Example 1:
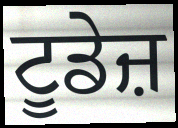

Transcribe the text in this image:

ਟੂਡੇਜ਼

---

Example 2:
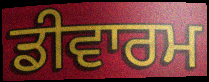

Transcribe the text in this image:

ਡੀਵਾਰਮ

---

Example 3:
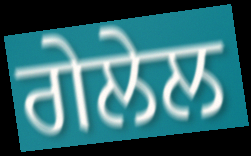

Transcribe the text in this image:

ਗੇਲੇਲ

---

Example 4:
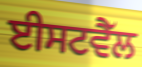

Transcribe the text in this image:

ਈਸਟਵੈੱਲ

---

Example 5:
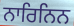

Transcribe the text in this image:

ਨਾਰਿਨਿਨ